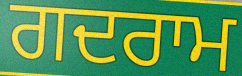
ਗਦਰਾਮ